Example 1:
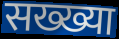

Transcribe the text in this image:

सख्ख्या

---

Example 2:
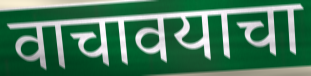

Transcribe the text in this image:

वाचावयाचा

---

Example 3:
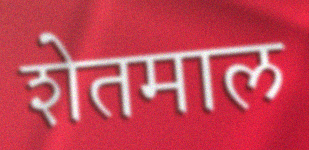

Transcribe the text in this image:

शेतमाल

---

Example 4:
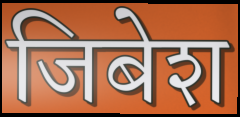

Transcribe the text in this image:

जिबेश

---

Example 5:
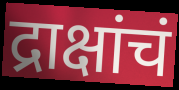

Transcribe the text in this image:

द्राक्षांचं